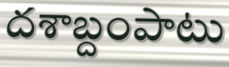
దశాబ్దంపాటు